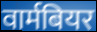
वार्मबियर